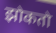
झोकतो